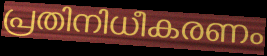
പ്രതിനിധീകരണം